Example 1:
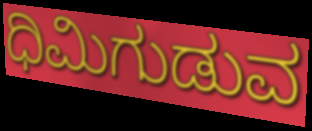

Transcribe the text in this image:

ಧಿಮಿಗುಡುವ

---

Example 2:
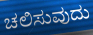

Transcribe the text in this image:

ಚಲಿಸುವುದು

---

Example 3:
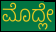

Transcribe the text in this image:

ಮೊದ್ಲೇ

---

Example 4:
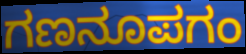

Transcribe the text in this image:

ಗಣನೂಪಗಂ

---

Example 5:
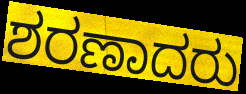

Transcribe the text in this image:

ಶರಣಾದರು